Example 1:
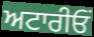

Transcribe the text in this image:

ਅਟਾਰੀਓਂ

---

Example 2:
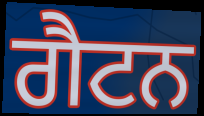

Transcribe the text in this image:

ਗੈਟਨ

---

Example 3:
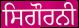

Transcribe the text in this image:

ਸਿਗੌਰਨੀ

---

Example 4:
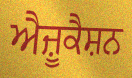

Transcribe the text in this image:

ਐਜ਼ੂਕੈਸ਼ਨ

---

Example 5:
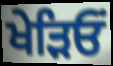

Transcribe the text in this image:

ਖੇੜਿਓਂ